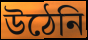
উঠেনি